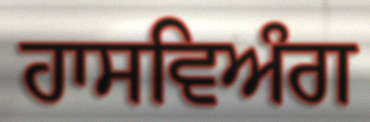
ਹਾਸਵਿਅੰਗ